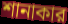
শানাকার